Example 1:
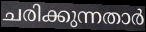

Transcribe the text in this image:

ചരിക്കുന്നതാർ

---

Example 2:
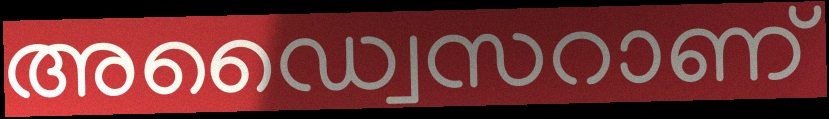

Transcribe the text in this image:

അഡ്വൈസറാണ്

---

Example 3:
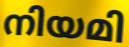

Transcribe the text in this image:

നിയമി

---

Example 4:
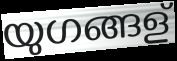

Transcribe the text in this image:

യുഗങ്ങള്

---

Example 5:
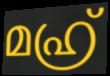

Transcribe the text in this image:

മഹ്ര്